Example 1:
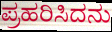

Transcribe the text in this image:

ಪ್ರಹರಿಸಿದನು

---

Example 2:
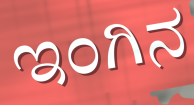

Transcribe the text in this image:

ಇಂಗಿನ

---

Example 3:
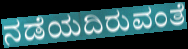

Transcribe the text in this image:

ನಡೆಯದಿರುವಂತೆ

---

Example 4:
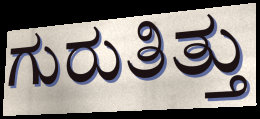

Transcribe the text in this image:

ಗುರುತಿತ್ತು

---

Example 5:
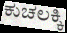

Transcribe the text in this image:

ಕುಚಲಕ್ಕಿ